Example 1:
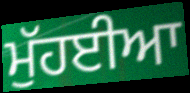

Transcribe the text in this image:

ਮੁੱਹਈਆ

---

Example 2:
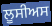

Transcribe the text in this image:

ਲੂਸੀਅਸ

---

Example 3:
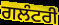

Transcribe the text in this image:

ਗਲੰਟਰੀ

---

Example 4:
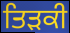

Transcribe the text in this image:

ਤਿੜਕੀ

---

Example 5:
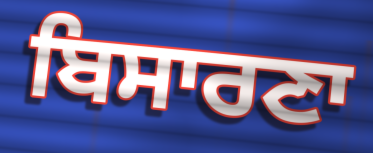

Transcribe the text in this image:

ਬਿਸਾਰਣਾ